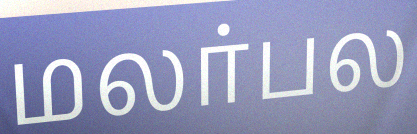
மலர்பல